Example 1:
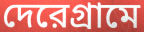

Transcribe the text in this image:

দেরেগ্রামে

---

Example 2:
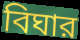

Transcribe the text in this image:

বিঘার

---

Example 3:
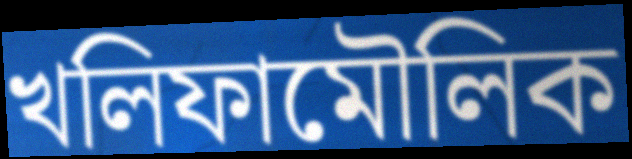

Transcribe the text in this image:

খলিফামৌলিক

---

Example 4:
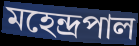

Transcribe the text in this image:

মহেন্দ্রপাল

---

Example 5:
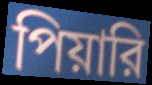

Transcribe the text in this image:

পিয়ারি